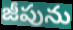
జీపును